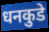
धनकुडे